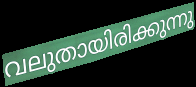
വലുതായിരിക്കുന്നു